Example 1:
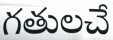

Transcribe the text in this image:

గతులచే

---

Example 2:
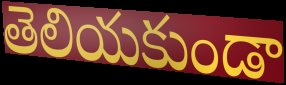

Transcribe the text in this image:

తెలియకుండా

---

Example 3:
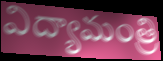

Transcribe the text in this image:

విద్యామంత్రి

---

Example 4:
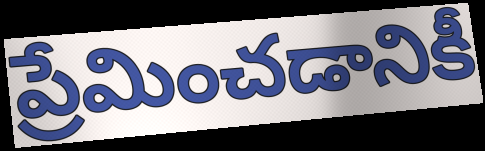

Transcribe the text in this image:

ప్రేమించడానికీ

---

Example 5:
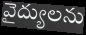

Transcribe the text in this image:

వైద్యులను